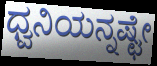
ಧ್ವನಿಯನ್ನಷ್ಟೇ